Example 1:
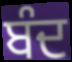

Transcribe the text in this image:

ਬੰਦ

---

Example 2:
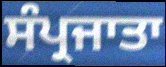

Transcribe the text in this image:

ਸੰਪ੍ਰਜਾਤਾ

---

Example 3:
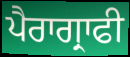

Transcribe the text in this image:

ਪੈਰਾਗ੍ਰਾਫੀ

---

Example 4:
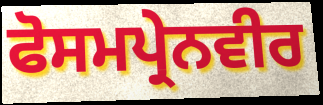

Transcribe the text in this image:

ਫੋਸਮਪ੍ਰੇਨਵੀਰ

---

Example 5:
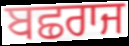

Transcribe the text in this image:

ਬਛਰਾਜ